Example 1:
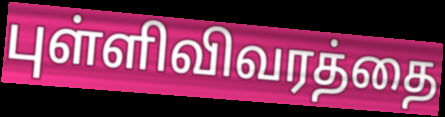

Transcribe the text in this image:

புள்ளிவிவரத்தை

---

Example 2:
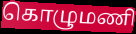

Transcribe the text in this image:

கொழுமணி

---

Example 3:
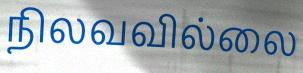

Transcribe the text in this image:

நிலவவில்லை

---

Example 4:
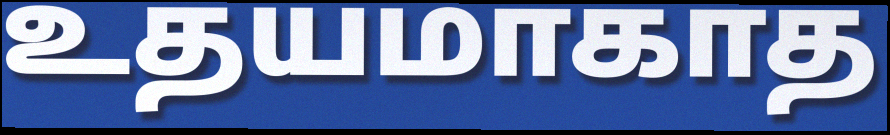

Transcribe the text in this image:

உதயமாகாத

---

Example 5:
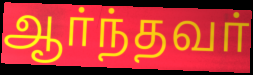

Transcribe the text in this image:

ஆர்ந்தவர்